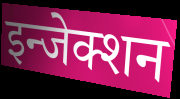
इन्जेक्शन